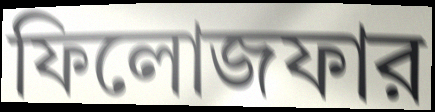
ফিলোজফার